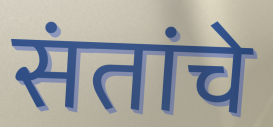
संतांचे